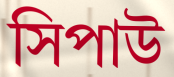
সিপাউ